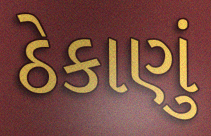
ઠેકાણું